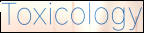
Toxicology